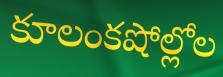
కూలంకషోల్లోల